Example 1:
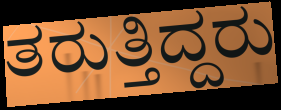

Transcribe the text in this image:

ತರುತ್ತಿದ್ದರು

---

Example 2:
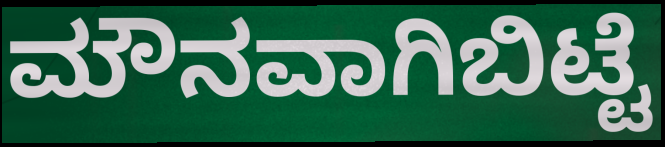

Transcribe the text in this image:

ಮೌನವಾಗಿಬಿಟ್ಟೆ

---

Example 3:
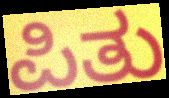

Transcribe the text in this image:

ಪಿತು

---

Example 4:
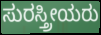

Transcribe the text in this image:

ಸುರಸ್ತ್ರೀಯರು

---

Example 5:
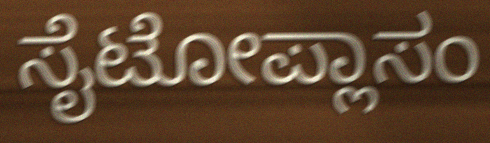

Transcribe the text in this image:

ಸೈಟೋಪ್ಲಾಸಂ